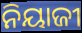
ନିୟାଜୀ